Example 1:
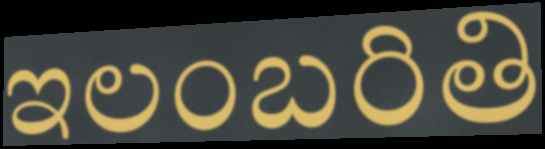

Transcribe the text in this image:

ఇలంబరితి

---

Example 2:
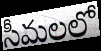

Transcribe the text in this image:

సీమలలో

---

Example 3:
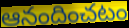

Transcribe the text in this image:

ఆనందించటం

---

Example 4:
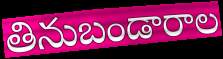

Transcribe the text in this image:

తినుబండారాల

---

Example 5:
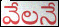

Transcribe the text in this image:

వేలనే